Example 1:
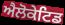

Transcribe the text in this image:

ਐਲੋਕੇਟਿਡ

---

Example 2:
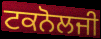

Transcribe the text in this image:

ਟਕਨੋਲਜੀ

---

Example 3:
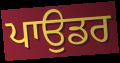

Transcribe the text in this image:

ਪਾਉਡਰ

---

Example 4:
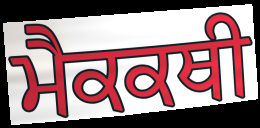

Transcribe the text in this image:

ਮੈਕਕਥੀ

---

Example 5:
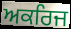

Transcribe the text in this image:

ਅਕਰਿਜ